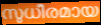
സുധീരമായ